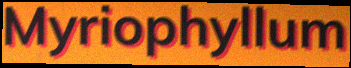
Myriophyllum